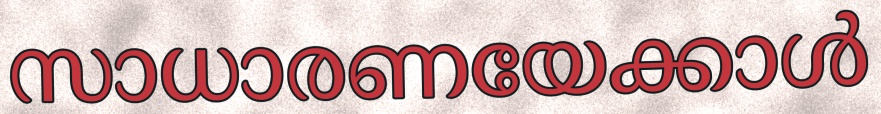
സാധാരണയേക്കാൾ